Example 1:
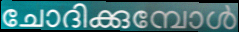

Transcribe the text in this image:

ചോദിക്കുമ്പോൾ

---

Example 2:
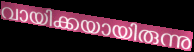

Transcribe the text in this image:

വായിക്കയായിരുന്നു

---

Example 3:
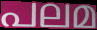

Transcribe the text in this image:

പലമ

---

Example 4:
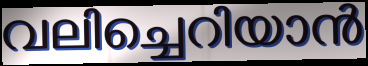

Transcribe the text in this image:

വലിച്ചെറിയാൻ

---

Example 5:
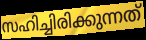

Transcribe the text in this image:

സഹിച്ചിരിക്കുന്നത്